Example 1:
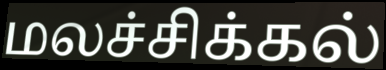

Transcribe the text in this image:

மலச்சிக்கல்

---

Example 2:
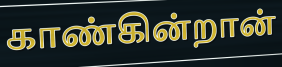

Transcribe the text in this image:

காண்கின்றான்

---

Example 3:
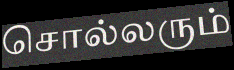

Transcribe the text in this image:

சொல்லரும்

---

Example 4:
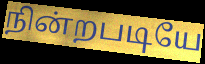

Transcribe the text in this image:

நின்றபடியே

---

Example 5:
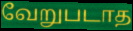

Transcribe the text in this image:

வேறுபடாத